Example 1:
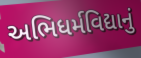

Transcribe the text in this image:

અભિધર્મવિદ્યાનું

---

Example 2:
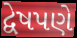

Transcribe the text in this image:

દ્વેષપણે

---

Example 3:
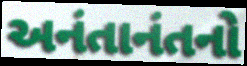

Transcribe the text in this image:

અનંતાનંતનો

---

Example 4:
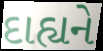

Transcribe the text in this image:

દાહ્યને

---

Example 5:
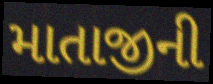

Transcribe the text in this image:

માતાજીની